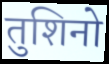
तुशिनो